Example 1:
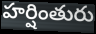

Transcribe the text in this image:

హర్షింతురు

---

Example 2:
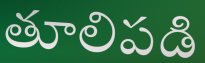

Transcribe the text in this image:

తూలిపడి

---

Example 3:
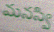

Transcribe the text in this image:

మనస్వి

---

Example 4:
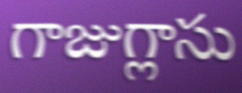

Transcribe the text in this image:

గాజుగ్లాసు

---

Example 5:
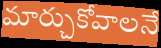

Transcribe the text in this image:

మార్చుకోవాలనే